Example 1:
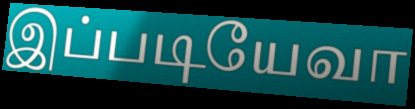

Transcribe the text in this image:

இப்படியேவா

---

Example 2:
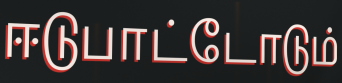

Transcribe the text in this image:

ஈடுபாட்டோடும்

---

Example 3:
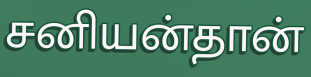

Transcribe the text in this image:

சனியன்தான்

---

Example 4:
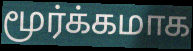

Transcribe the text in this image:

மூர்க்கமாக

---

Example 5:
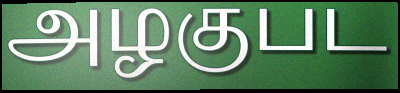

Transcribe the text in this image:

அழகுபட